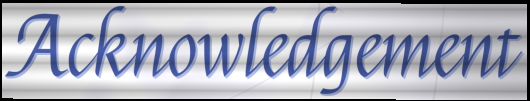
Acknowledgement